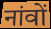
नांवों